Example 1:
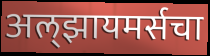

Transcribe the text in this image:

अल्झायमर्सचा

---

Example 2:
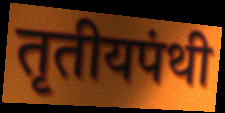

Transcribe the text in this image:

तृतीयपंथी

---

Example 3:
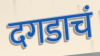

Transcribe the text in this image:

दगडाचं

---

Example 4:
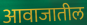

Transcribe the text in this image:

आवाजातील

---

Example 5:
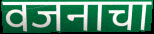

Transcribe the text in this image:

वजनाचा